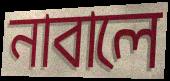
নাবালে